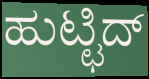
ಹುಟ್ಟಿದ್